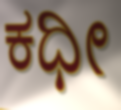
ಕಧೀ